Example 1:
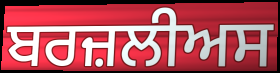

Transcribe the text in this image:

ਬਰਜ਼ਲੀਅਸ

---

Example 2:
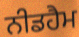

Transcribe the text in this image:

ਨੀਡਹੈਮ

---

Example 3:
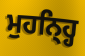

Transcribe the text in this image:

ਮੁਹਨ੍ਹ੍ਹਿ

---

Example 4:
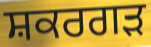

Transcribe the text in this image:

ਸ਼ਕਰਗੜ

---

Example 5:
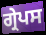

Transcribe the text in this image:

ਗ੍ਰੇਪਸ